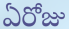
ఏరోజు